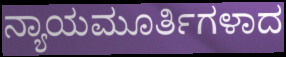
ನ್ಯಾಯಮೂರ್ತಿಗಳಾದ